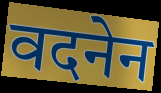
वदनेन